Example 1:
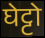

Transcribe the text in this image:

घेट्टो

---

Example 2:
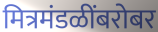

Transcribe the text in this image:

मित्रमंडळींबरोबर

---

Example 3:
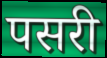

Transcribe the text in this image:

पसरी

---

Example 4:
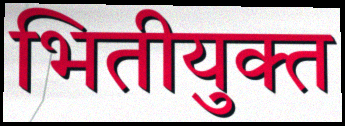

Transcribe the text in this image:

भितीयुक्त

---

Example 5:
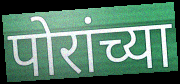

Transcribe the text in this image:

पोरांच्या